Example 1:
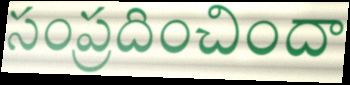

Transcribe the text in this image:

సంప్రదించిందా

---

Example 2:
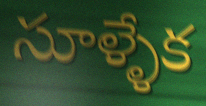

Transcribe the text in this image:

సూళ్ళేక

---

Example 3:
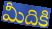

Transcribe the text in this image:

మీదికి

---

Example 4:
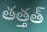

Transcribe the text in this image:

తత్తత్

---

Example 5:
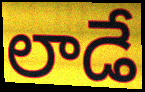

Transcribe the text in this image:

లాడే